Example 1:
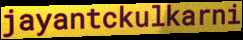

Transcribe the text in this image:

jayantckulkarni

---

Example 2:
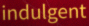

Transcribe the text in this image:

indulgent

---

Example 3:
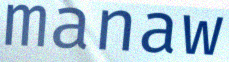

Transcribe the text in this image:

manaw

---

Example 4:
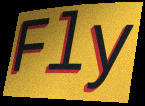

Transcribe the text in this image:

Fly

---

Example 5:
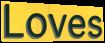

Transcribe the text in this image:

Loves